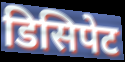
डिसिपेट